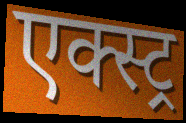
एक्स्ट्र